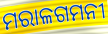
ମରାଳଗମନୀ